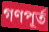
গণপূর্ত